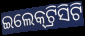
ଇଲେକ୍‌ଟ୍ରିସିଟି